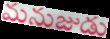
మనుజుడు